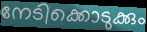
നേടിക്കൊടുക്കും